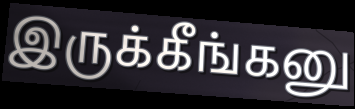
இருக்கீங்கனு